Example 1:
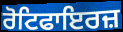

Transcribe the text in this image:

ਰੋਟਿਫਾਇਰਜ਼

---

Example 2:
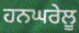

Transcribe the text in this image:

ਹਨਘਰੇਲੂ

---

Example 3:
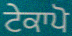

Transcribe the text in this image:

ਟੇਕਾਪੋ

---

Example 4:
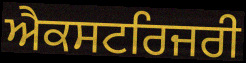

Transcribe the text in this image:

ਐਕਸਟਰਿਜਰੀ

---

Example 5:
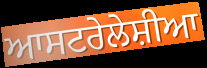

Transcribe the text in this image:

ਆਸਟਰੇਲੇਸ਼ੀਆ